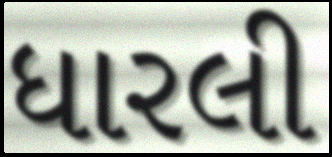
ધારલી